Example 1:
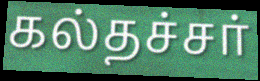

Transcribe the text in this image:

கல்தச்சர்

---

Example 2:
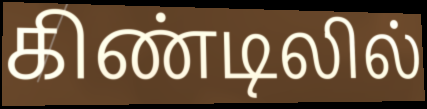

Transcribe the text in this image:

கிண்டிலில்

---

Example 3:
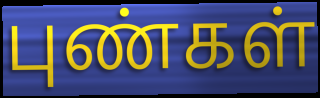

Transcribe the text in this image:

புண்கள்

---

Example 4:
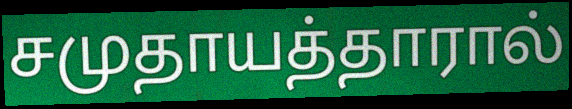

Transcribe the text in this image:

சமுதாயத்தாரால்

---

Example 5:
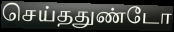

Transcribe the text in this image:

செய்ததுண்டோ